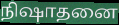
நிஷாதனை